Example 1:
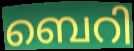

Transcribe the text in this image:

ബെറി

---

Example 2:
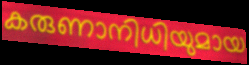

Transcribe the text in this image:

കരുണാനിധിയുമായ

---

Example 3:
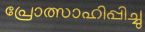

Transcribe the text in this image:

പ്രോത്സാഹിപ്പിച്ചു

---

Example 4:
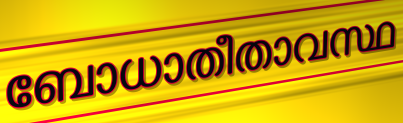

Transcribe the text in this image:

ബോധാതീതാവസ്ഥ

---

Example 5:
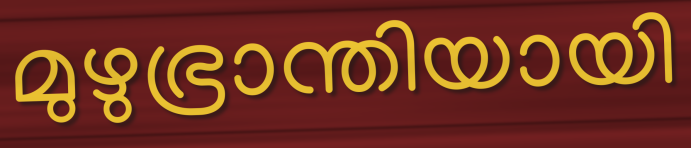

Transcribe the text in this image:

മുഴുഭ്രാന്തിയായി